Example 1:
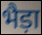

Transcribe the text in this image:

भैड़ा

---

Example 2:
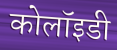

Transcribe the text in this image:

कोलॉइडी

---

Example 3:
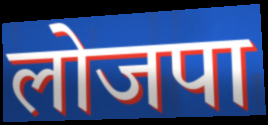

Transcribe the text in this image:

लोजपा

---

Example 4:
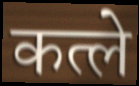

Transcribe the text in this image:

कत्ले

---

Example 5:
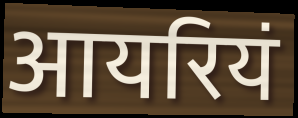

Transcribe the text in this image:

आयरियं